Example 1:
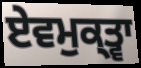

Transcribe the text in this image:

ਏਵਮੁਕ੍ਤ੍ਵਾ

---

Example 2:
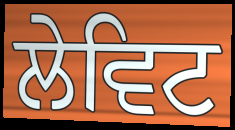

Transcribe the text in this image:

ਲੇਵਿਟ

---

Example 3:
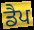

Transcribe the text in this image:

ਡੈਪ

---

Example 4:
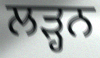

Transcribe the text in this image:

ਲੜ੍ਹਨ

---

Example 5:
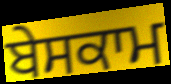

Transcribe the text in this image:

ਬੇਸਕਾਮ